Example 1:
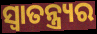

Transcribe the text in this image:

ସ୍ୱାତନ୍ତ୍ର୍ୟର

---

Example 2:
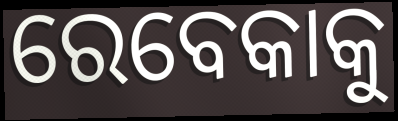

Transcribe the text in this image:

ରେବେକାକୁ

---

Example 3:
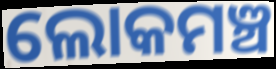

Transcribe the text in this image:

ଲୋକମଞ୍ଚ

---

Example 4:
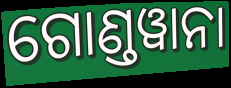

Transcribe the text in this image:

ଗୋଣ୍ଡୱାନା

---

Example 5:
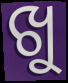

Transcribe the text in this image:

ଖୁ